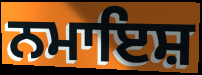
ਨਮਾਇਸ਼